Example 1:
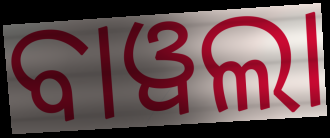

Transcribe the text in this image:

ବାୱଲା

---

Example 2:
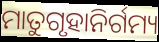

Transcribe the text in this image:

ମାତୁଗୃହାନିର୍ଗମ୍ୟ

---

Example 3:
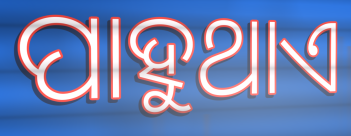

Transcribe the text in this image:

ପାହୁଥାଏ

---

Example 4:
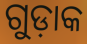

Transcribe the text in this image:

ଗୁଡ଼ାକ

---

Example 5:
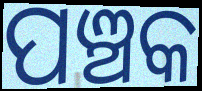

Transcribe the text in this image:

ପଞ୍ଚକ